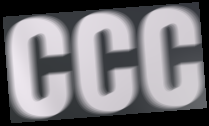
ccc